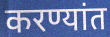
करण्यांत